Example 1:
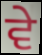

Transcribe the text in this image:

ਵੇ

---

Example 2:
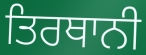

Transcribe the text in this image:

ਤਿਰਥਾਨੀ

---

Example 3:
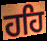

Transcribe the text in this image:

ਹਹਿ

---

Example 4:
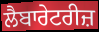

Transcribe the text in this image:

ਲੈਬਾਰੇਟਰੀਜ਼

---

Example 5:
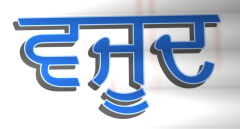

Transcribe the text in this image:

ਵਜੂਦ